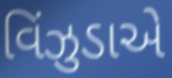
વિંઝુડાએ